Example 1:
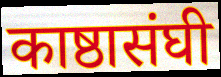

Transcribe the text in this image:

काष्ठासंघी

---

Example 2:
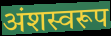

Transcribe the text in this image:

अंशस्वरूप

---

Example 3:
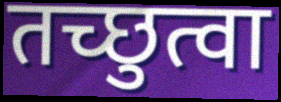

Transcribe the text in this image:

तच्छुत्वा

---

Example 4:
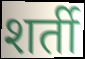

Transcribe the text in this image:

शर्ती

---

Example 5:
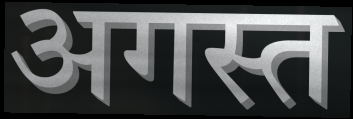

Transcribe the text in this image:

अगस्त